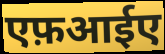
एफ़आईए